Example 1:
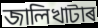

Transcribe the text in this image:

জালিখাটাৰ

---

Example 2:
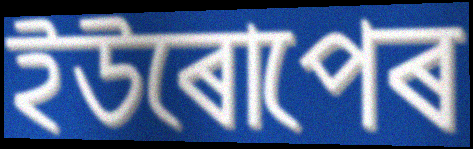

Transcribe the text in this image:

ইউৰোপেৰ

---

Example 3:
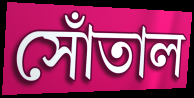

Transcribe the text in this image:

সোঁতাল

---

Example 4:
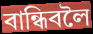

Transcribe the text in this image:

বান্ধিবলৈ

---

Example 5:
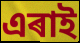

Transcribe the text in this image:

এৰাই